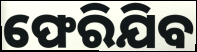
ଫେରିଯିବ